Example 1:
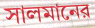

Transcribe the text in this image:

সালমানের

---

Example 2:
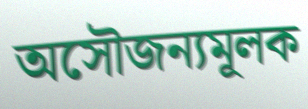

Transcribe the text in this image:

অসৌজন্যমূলক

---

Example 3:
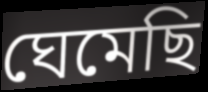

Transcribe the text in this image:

ঘেমেছি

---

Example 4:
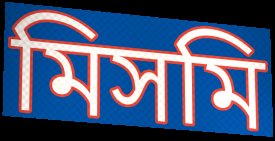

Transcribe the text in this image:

মিসমি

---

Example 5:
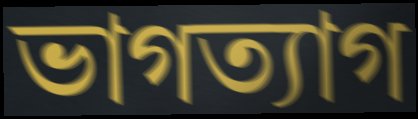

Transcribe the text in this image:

ভাগত্যাগ